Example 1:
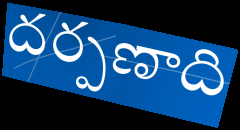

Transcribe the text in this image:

దర్పణాది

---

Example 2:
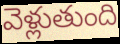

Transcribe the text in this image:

వెళ్లుతుంది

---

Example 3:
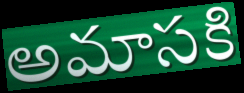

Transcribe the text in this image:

అమాసకి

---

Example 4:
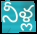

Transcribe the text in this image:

నీళ్ల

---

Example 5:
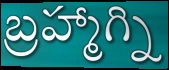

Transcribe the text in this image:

బ్రహ్మాగ్ని